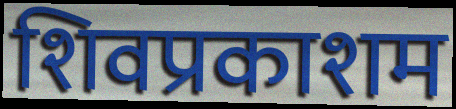
शिवप्रकाशम